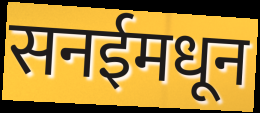
सनईमधून